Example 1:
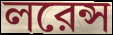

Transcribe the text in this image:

লরেন্স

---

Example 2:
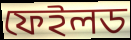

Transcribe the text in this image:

ফেইলড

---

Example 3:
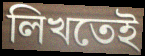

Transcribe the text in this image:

লিখতেই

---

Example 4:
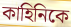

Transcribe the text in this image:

কাহিনিকে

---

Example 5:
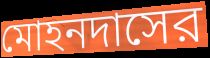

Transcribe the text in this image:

মোহনদাসের